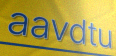
aavdtu